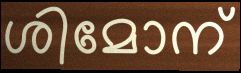
ശിമോന്